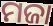
ମଜା